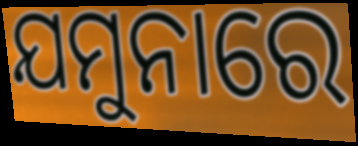
ଯମୁନାରେ